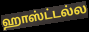
ஹாஸ்ட்டல்ல